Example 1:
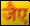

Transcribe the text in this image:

जैए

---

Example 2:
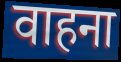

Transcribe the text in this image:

वाहना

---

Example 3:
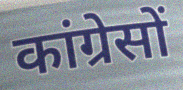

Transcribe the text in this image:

कांग्रेसों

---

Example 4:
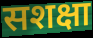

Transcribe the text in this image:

सशक्षा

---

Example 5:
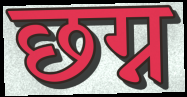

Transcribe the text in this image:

छग्न